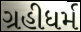
ગ્રહીધર્મ